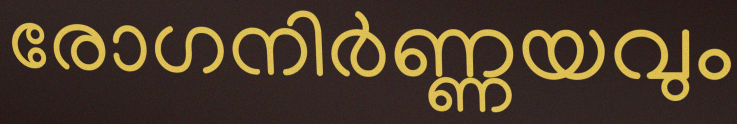
രോഗനിർണ്ണയവും